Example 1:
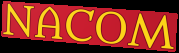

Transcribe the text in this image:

NACOM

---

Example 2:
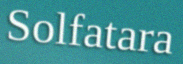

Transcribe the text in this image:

Solfatara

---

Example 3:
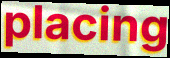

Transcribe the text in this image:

placing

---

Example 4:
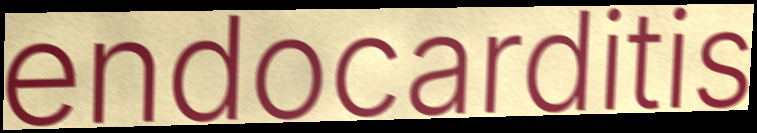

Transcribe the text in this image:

endocarditis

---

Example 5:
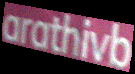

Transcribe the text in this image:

arathivb